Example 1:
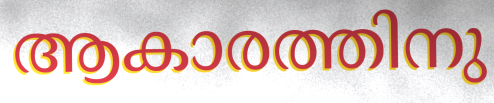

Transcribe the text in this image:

ആകാരത്തിനു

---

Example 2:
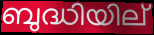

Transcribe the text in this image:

ബുദ്ധിയില്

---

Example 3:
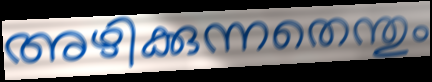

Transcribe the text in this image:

അഴിക്കുന്നതെന്തും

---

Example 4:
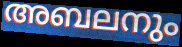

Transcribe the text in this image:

അബലനും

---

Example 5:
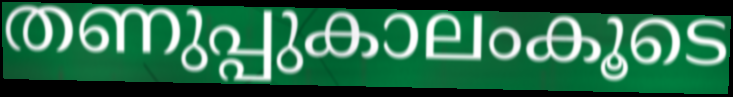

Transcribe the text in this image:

തണുപ്പുകാലംകൂടെ